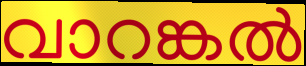
വാറങ്കൽ